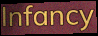
Infancy